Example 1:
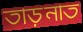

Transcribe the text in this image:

তাড়নাত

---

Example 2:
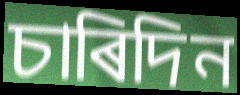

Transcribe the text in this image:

চাৰিদিন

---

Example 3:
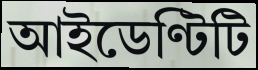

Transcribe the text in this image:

আইডেণ্টিটি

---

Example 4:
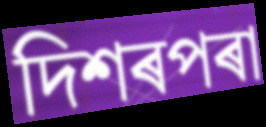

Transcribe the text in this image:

দিশৰপৰা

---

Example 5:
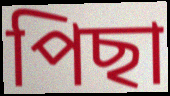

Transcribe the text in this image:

পিছা